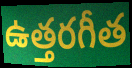
ఉత్తరగీత